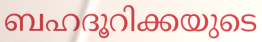
ബഹദൂറിക്കയുടെ